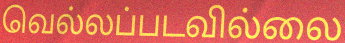
வெல்லப்படவில்லை